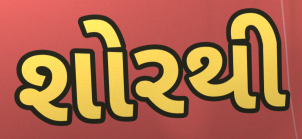
શોરથી